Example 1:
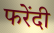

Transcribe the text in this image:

फरेंदी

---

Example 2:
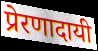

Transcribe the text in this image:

प्रेरणादायी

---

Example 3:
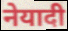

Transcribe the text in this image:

नेयादी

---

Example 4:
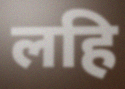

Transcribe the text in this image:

लहि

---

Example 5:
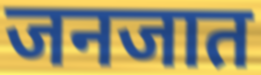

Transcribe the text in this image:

जनजात